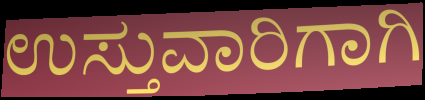
ಉಸ್ತುವಾರಿಗಾಗಿ